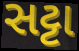
સટ્ટા